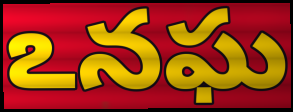
ఽనఘ